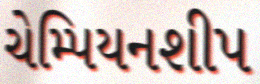
ચેમ્પિયનશીપ